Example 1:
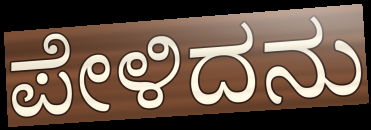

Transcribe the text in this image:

ಪೇಳಿದನು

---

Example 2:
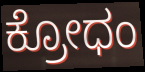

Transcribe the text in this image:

ಕ್ರೋಧಂ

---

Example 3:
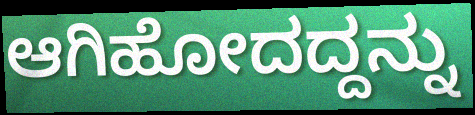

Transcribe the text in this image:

ಆಗಿಹೋದದ್ದನ್ನು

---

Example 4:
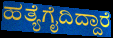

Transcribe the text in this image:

ಹತ್ಯೆಗೈದಿದ್ದಾರೆ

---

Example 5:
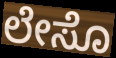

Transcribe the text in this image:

ಲೇಸೊ